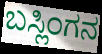
ಬಸ್ಲಿಂಗನ